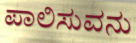
ಪಾಲಿಸುವನು